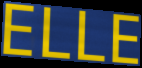
ELLE